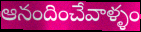
ఆనందించేవాళ్ళం